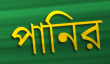
পানির